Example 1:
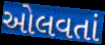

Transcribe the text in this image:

ઓલવતાં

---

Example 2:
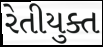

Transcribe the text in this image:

રેતીયુક્ત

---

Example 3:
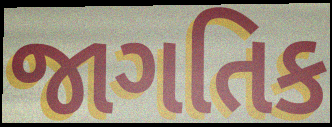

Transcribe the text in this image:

જાગતિક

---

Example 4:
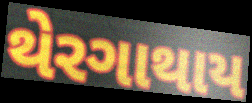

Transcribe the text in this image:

થેરગાથાય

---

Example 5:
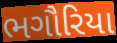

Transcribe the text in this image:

ભગૌરિયા